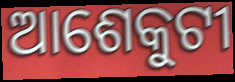
ଆଶେକୁଟୀ